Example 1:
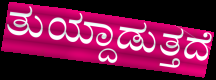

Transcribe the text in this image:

ತುಯ್ದಾಡುತ್ತದೆ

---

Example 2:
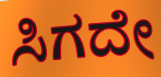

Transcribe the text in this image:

ಸಿಗದೇ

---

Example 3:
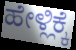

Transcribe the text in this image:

ಹೇಳ್ಲಿಕ್ಕೆ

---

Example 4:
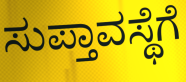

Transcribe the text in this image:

ಸುಪ್ತಾವಸ್ಥೆಗೆ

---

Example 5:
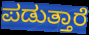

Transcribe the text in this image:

ಪಡುತ್ತಾರೆ